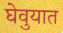
घेवुयात